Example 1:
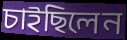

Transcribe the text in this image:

চাইছিলেন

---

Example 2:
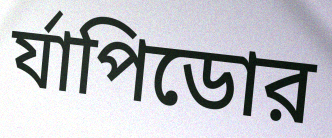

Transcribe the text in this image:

র্যাপিডোর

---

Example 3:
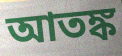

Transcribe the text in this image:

আতঙ্ক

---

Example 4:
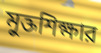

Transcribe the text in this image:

মুক্তশিক্ষার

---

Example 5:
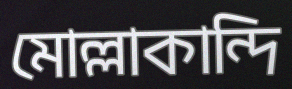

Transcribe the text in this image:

মোল্লাকান্দি